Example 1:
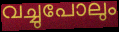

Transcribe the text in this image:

വച്ചുപോലും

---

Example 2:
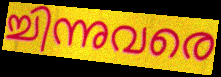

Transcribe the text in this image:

ച്ചിന്നുവരെ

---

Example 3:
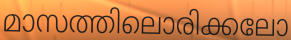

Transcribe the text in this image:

മാസത്തിലൊരിക്കലോ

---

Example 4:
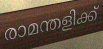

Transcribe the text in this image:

രാമന്തളിക്ക്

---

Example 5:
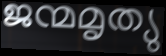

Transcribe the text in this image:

ജന്മമൃത്യു